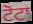
ਟੋਟਾ